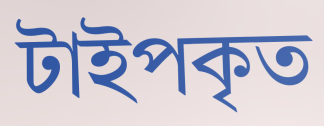
টাইপকৃত